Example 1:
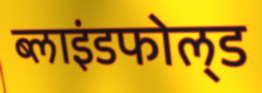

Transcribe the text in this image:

ब्लाइंडफोल्ड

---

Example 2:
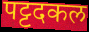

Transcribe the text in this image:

पट्टदकल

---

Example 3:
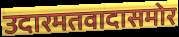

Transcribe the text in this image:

उदारमतवादासमोर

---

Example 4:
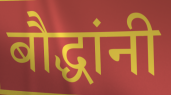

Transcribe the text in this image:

बौद्धांनी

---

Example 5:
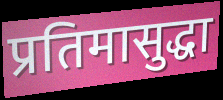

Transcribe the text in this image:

प्रतिमासुद्धा